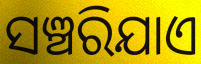
ସଞ୍ଚରିଯାଏ